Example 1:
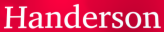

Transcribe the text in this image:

Handerson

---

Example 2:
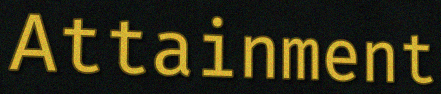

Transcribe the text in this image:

Attainment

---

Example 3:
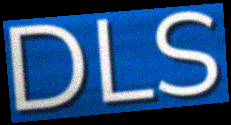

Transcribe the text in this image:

DLS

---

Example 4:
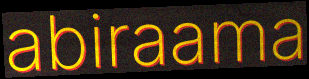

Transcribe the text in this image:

abiraama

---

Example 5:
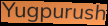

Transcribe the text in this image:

Yugpurush